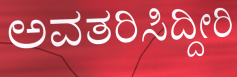
ಅವತರಿಸಿದ್ದೀರಿ